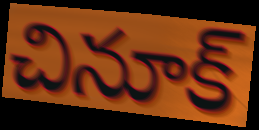
చినూక్